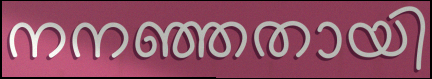
നനഞ്ഞതായി